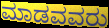
ಮಾಡವವರು